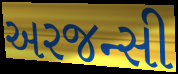
અરજન્સી